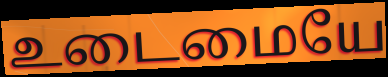
உடைமையே